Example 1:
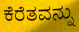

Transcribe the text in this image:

ಕೆರೆತವನ್ನು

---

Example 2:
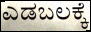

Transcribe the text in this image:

ಎಡಬಲಕ್ಕೆ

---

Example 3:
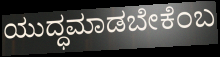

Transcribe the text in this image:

ಯುದ್ಧಮಾಡಬೇಕೆಂಬ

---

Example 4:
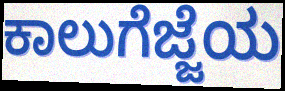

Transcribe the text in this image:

ಕಾಲುಗೆಜ್ಜೆಯ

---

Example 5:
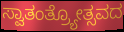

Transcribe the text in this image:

ಸ್ವಾತಂತ್ರ್ಯೋತ್ಸವದ